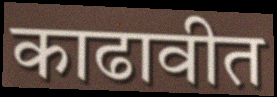
काढावीत